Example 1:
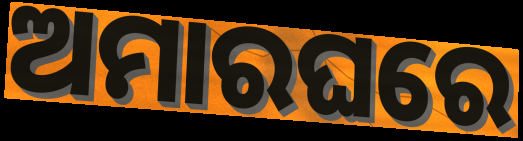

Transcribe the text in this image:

ଅମାରଘରେ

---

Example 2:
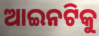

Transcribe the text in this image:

ଆଇନଟିକୁ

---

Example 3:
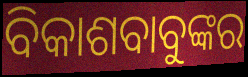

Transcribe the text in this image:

ବିକାଶବାବୁଙ୍କର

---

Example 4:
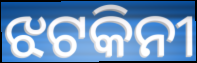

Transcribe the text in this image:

ଝଟକିନୀ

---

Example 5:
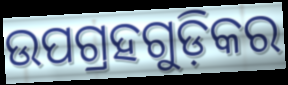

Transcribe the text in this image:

ଉପଗ୍ରହଗୁଡ଼ିକର